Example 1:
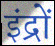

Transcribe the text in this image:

इंद्रों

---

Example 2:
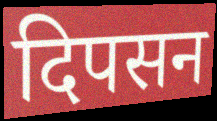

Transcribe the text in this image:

दिपसन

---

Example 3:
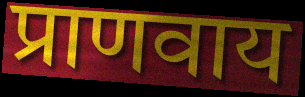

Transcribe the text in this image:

प्राणवाय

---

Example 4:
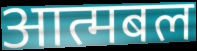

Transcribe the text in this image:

आत्मबल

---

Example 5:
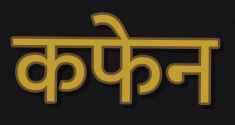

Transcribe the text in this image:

कफेन